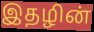
இதழின்